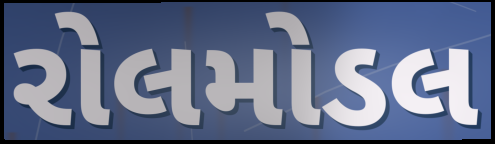
રોલમોડલ